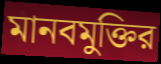
মানবমুক্তির